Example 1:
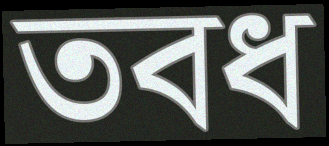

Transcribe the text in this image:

তবধ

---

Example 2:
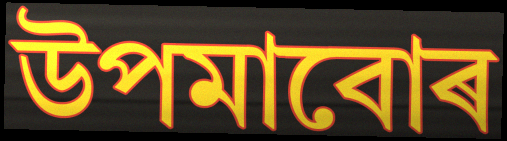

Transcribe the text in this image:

উপমাবোৰ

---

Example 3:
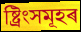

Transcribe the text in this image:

ষ্ট্ৰিংসমূহৰ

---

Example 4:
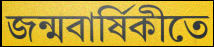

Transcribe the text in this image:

জন্মবাৰ্ষিকীতে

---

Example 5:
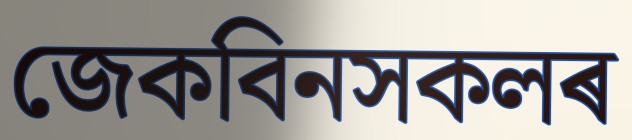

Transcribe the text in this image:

জেকবিনসকলৰ